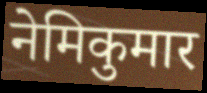
नेमिकुमार